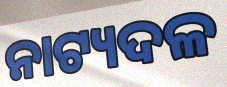
ନାଟ୍ୟଦଳ